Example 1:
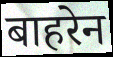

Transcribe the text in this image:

बाहरेन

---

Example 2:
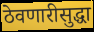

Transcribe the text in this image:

ठेवणारीसुद्धा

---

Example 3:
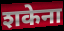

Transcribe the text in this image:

शकेना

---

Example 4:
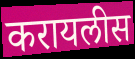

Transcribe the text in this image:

करायलीस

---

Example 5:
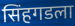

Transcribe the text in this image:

सिंहगडला